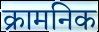
क्रामनिक